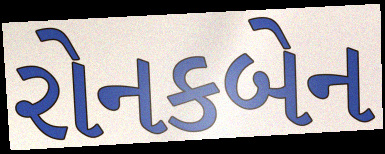
રોનકબેન